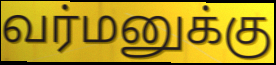
வர்மனுக்கு